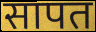
सापत